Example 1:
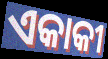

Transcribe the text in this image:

ଏକାକୀ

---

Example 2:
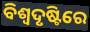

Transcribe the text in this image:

ବିଶ୍ଵଦୃଷ୍ଟିରେ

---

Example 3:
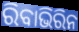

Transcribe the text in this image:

ରିବାଭିରିନ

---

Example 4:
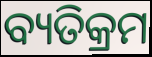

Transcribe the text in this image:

ବ୍ୟତିକ୍ରମ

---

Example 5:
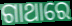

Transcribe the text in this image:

ଗାଥାରେ